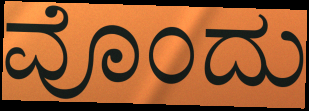
ವೊಂದು